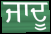
ਜਾਦੂ